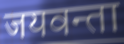
जयवन्ता